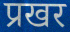
प्रखर